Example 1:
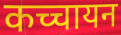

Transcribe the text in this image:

कच्चायन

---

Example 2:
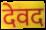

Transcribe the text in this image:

देवद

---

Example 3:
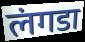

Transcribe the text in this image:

लंगडा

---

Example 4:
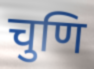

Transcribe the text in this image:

चुणि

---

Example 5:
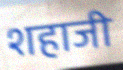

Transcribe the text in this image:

शहाजी